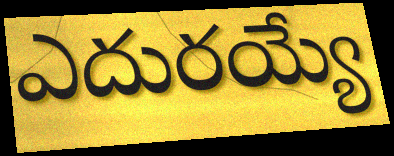
ఎదురయ్యే